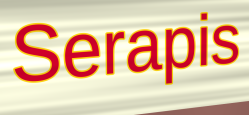
Serapis